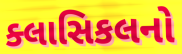
ક્લાસિકલનો